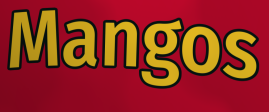
Mangos